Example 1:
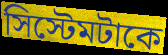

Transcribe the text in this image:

সিস্টেমটাকে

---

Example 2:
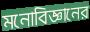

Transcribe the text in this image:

মনোবিজ্ঞানের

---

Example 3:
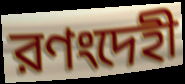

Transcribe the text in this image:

রণংদেহী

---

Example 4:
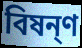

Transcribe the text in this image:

বিষন্ণ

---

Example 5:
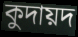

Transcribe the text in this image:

কুদায়দ